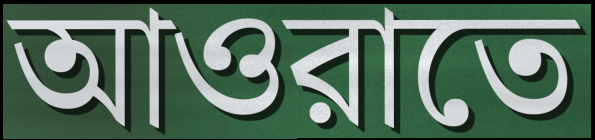
আওরাতে